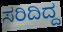
ಸರಿದಿದ್ದ